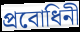
প্রবোধিনী